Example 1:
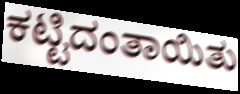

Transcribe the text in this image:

ಕಟ್ಟಿದಂತಾಯಿತು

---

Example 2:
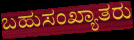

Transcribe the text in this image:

ಬಹುಸಂಖ್ಯಾತರು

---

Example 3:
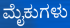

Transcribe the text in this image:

ಮೈಕುಗಳು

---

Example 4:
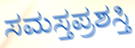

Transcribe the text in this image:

ಸಮಸ್ತಪ್ರಶಸ್ತಿ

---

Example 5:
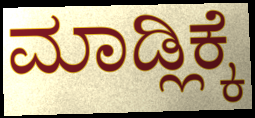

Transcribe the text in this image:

ಮಾಡ್ಲಿಕ್ಕೆ